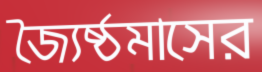
জ্যৈষ্ঠমাসের